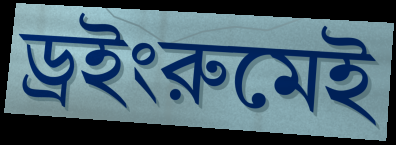
ড্রইংরুমেই